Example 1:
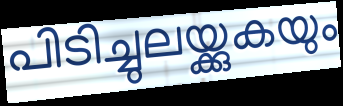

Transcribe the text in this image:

പിടിച്ചുലയ്ക്കുകയും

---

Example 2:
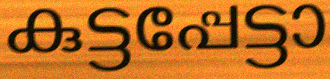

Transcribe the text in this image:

കുട്ടപ്പേട്ടാ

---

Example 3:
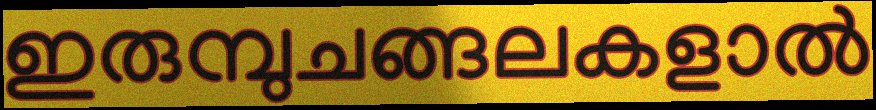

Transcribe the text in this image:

ഇരുമ്പുചങ്ങലകളാൽ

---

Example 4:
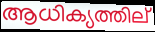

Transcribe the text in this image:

ആധിക്യത്തില്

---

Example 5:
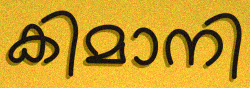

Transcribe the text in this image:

കിമാനി